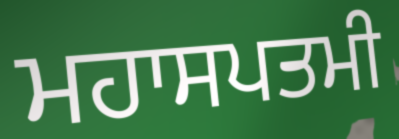
ਮਹਾਸਪਤਮੀ